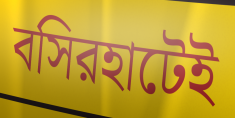
বসিরহাটেই